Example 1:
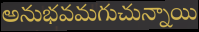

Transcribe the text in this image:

అనుభవమగుచున్నాయి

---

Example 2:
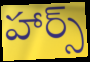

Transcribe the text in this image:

హార్స్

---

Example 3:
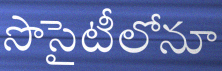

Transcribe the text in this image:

సొసైటీలోనూ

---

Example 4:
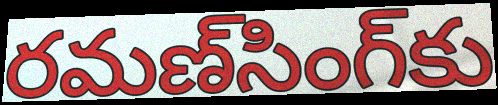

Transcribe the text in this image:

రమణ్‌సింగ్‌కు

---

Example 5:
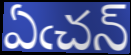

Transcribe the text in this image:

ఏఁచన్